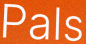
Pals